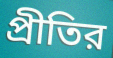
প্রীতির